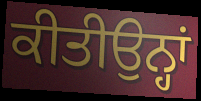
ਕੀਤੀਉਨ੍ਹਾਂ